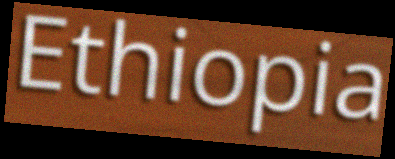
Ethiopia